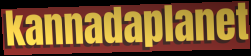
kannadaplanet